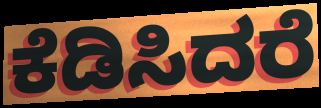
ಕೆಡಿಸಿದರೆ